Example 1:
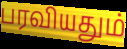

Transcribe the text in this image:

பரவியதும்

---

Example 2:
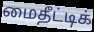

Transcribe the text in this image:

மைதீட்டிக்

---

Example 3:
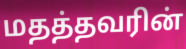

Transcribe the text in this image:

மதத்தவரின்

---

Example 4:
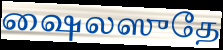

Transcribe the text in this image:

ஷைலஸுதே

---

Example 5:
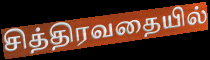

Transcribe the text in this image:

சித்திரவதையில்